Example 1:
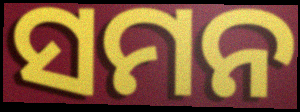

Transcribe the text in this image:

ସମନ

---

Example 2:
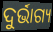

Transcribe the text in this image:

ଦୁର୍ଭାଗ୍ୟ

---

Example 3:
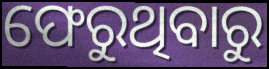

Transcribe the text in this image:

ଫେରୁଥିବାରୁ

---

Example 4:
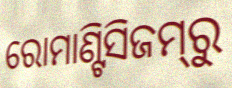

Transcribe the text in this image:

ରୋମାଣ୍ଟିସିଜମ୍‌ରୁ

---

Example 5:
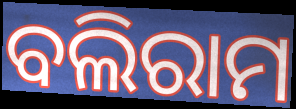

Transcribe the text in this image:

ବଲିରାମ